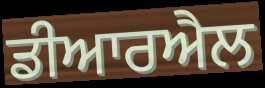
ਡੀਆਰਐਲ